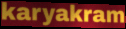
karyakram